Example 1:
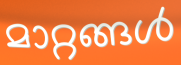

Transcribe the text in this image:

മാറ്റങ്ങൾ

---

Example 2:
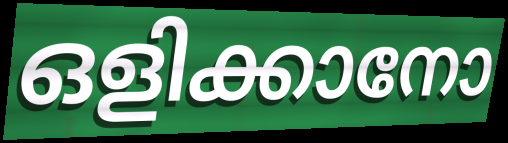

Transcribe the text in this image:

ഒളിക്കാനോ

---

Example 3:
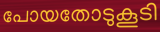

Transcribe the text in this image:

പോയതോടുകൂടി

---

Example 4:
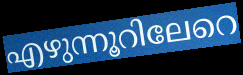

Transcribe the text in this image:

എഴുന്നൂറിലേറെ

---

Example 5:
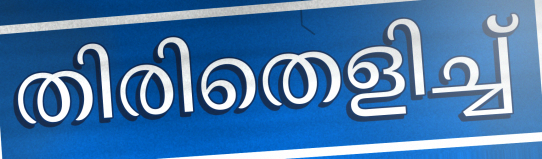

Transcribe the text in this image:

തിരിതെളിച്ച്